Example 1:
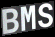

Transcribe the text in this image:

BMS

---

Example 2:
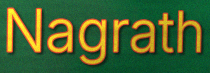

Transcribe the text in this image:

Nagrath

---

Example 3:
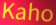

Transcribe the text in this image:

Kaho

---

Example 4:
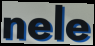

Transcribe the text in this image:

nele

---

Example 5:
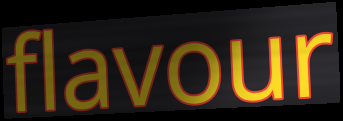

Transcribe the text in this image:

flavour